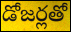
డోజర్లతో